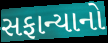
સફાન્યાનો